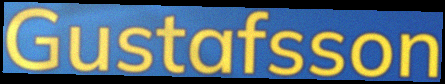
Gustafsson